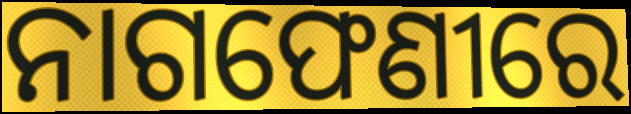
ନାଗଫେଣୀରେ